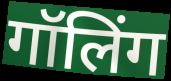
गॉलिंग